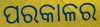
ପରକାଳର